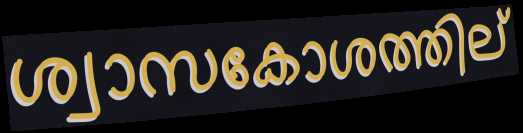
ശ്വാസകോശത്തില്